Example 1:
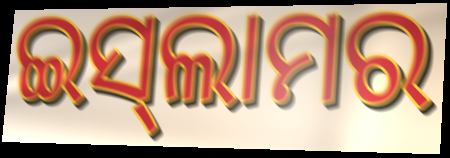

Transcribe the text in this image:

ଇସ୍‍ଲାମର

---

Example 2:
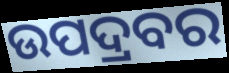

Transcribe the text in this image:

ଉପଦ୍ରବର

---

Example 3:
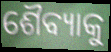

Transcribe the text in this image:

ଶୈବ୍ୟାକୁ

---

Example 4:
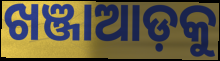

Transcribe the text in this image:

ଖଞ୍ଜାଆଡ଼କୁ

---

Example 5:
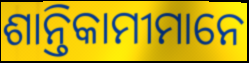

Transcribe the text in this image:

ଶାନ୍ତିକାମୀମାନେ